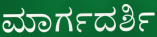
ಮಾರ್ಗದರ್ಶಿ